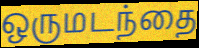
ஒருமடந்தை